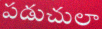
పడుచులా